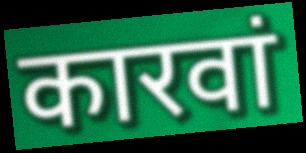
कारवां